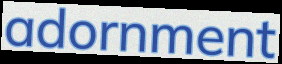
adornment